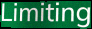
Limiting